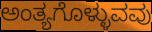
ಅಂತ್ಯಗೊಳ್ಳುವವು